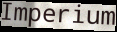
Imperium